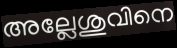
അല്ലേശുവിനെ